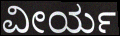
ವೀರ್ಯ